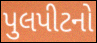
પુલપીટનો